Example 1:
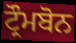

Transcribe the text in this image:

ਟ੍ਰੌਮਬੋਨ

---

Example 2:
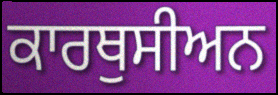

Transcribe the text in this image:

ਕਾਰਥੁਸੀਅਨ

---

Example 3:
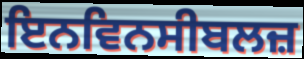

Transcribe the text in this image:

ਇਨਵਿਨਸੀਬਲਜ਼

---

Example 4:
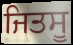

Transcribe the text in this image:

ਜਿਤਸੂ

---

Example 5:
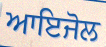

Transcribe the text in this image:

ਆਇਜੋਲ